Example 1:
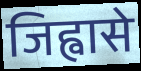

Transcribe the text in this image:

जिह्वासे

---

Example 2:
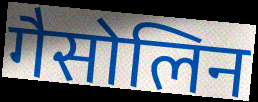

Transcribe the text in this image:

गैसोलिन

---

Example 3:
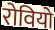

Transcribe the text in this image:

रोवियो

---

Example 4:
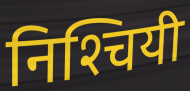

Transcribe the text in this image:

निश्चियी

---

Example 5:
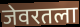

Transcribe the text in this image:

जेवरतला